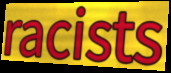
racists